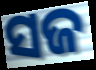
ସଜ